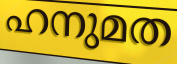
ഹനുമത